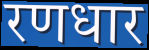
रणधार